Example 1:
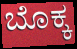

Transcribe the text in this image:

ಬೊಕ್ಕ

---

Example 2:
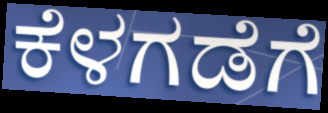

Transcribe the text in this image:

ಕೆಳಗಡೆಗೆ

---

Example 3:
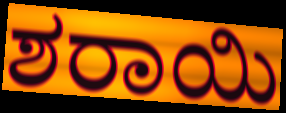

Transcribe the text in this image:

ಶರಾಯಿ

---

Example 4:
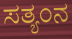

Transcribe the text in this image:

ಸತ್ಯಂನ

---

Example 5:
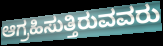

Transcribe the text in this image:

ಆಗ್ರಹಿಸುತ್ತಿರುವವರು